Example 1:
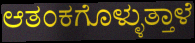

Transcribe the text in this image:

ಆತಂಕಗೊಳ್ಳುತ್ತಾಳೆ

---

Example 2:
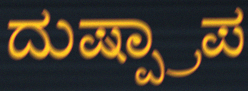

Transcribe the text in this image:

ದುಷ್ಪ್ರಾಪ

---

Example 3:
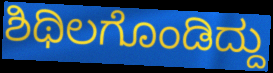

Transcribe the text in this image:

ಶಿಥಿಲಗೊಂಡಿದ್ದು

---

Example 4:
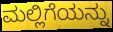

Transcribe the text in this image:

ಮಲ್ಲಿಗೆಯನ್ನು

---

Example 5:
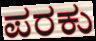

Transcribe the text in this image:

ಪರಕು